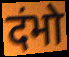
दंभो